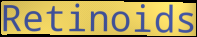
Retinoids